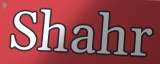
Shahr